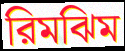
রিমঝিম